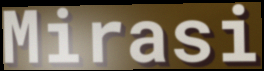
Mirasi